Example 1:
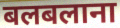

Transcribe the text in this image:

बलबलाना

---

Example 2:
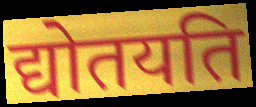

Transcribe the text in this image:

द्योतयति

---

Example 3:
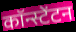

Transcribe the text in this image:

कॉन्स्टेंटन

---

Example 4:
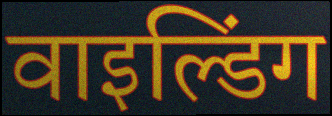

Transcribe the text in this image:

वाइल्डिंग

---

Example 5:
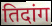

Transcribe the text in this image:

तिदांग